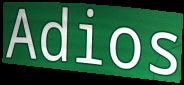
Adios